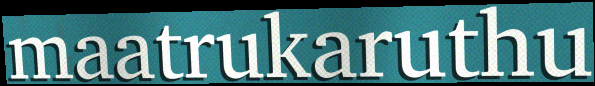
maatrukaruthu